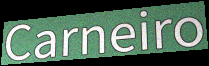
Carneiro